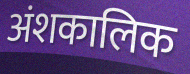
अंशकालिक